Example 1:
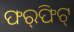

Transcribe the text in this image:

ଫର୍‍ଫିଟ୍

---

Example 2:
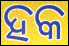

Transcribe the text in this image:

ହକ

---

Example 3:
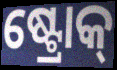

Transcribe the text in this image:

ଷ୍ଟ୍ରୋକ୍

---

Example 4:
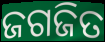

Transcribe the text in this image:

ଜଗଜିତ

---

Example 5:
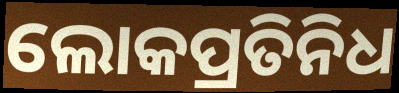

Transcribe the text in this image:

ଲୋକପ୍ରତିନିଧ